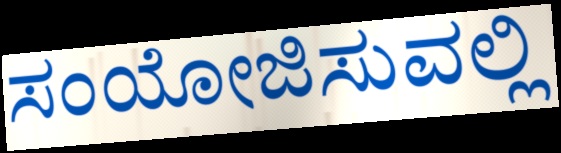
ಸಂಯೋಜಿಸುವಲ್ಲಿ